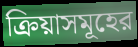
ক্রিয়াসমূহের